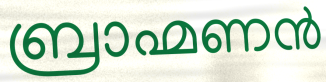
ബ്രാഹ്മണൻ